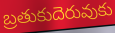
బ్రతుకుదెరువుకు